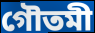
গৌতমী